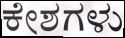
ಕೇಶಗಳು